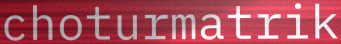
choturmatrik